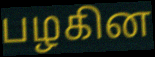
பழகின